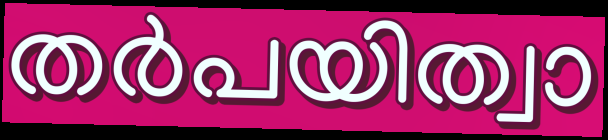
തർപയിത്വാ